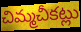
చిమ్మచీకట్లు